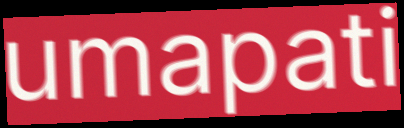
umapati